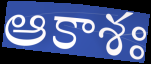
ఆకాశః